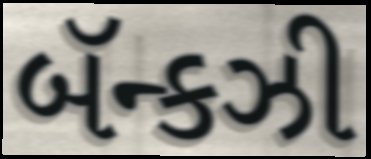
બૅન્કઝી